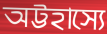
অট্টহাস্যে